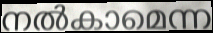
നൽകാമെന്ന